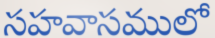
సహవాసములో